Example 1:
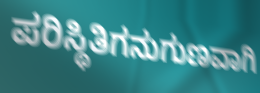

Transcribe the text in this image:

ಪರಿಸ್ಥಿತಿಗನುಗುಣವಾಗಿ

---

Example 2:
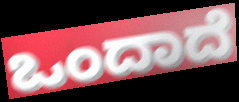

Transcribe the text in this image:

ಒಂದಾದೆ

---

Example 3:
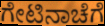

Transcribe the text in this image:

ಗೇಟಿನಾಚೆಗೆ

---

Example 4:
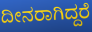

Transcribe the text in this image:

ದೀನರಾಗಿದ್ದರೆ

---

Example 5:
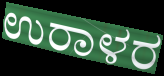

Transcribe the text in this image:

ಉರಾಳರ